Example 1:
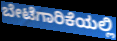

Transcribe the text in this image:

ಬೇಟೆಗಾರಿಕೆಯಲ್ಲಿ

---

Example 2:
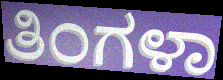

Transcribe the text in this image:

ತಿಂಗಳಾ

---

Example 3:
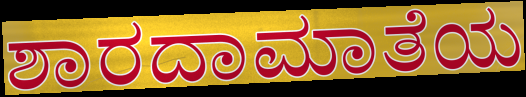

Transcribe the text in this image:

ಶಾರದಾಮಾತೆಯ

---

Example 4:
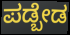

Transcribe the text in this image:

ಪಡ್ಬೇಡ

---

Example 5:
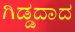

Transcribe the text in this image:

ಗಿಡ್ಡದಾದ